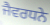
ਜੈਵਰਧਨੇ